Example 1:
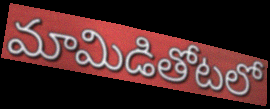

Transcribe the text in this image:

మామిడితోటలో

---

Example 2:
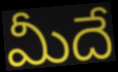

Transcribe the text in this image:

మీదే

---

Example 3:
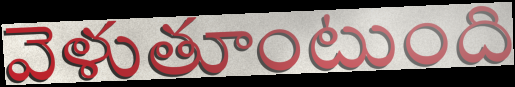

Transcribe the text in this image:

వెళుతూంటుంది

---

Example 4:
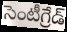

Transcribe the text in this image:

సెంటీగ్రేడ్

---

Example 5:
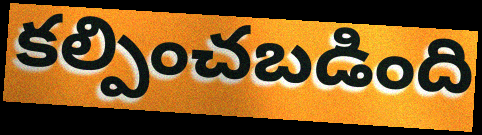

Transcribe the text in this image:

కల్పించబడింది